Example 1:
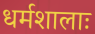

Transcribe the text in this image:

धर्मशालाः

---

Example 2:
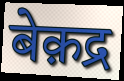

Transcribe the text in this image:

बेक़द्र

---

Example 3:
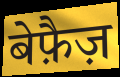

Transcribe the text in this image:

बेफ़ैज़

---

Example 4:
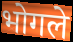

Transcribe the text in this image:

भोगले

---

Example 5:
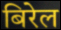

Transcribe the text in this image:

बिरेल